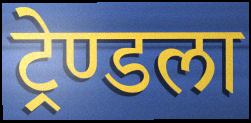
ट्रेण्डला